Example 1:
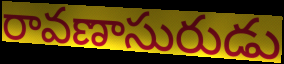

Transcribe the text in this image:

రావణాసురుడు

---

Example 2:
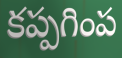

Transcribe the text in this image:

కప్పగింప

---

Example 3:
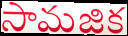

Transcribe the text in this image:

సామజిక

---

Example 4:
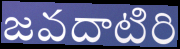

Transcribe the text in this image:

జవదాటిరి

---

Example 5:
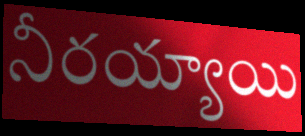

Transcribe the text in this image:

నీరయ్యాయి